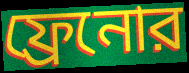
ফ্রেনোর